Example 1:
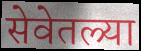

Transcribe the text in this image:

सेवेतल्या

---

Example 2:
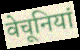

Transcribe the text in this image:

वेचूनियां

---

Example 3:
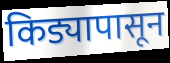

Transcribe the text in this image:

किड्यापासून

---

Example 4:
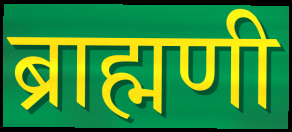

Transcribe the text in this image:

ब्राह्मणी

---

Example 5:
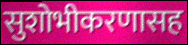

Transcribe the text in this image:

सुशोभीकरणासह